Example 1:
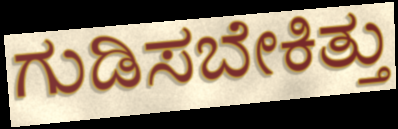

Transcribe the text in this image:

ಗುಡಿಸಬೇಕಿತ್ತು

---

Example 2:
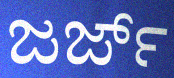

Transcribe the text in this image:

ಜರ್ಜ್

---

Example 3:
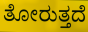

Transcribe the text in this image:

ತೋರುತ್ತದೆ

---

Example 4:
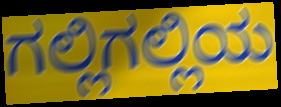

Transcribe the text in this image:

ಗಲ್ಲಿಗಲ್ಲಿಯ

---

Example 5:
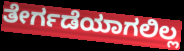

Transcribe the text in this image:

ತೇರ್ಗಡೆಯಾಗಲಿಲ್ಲ